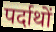
पर्दाथों